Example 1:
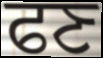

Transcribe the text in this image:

ਫਣ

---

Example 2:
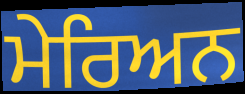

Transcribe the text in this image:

ਮੇਰਿਅਨ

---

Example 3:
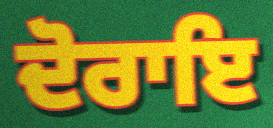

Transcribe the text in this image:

ਦੋਰਾਇ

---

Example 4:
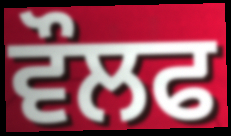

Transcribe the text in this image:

ਵੌਲਫ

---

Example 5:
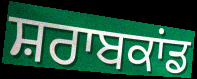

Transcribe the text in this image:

ਸ਼ਰਾਬਕਾਂਡ